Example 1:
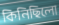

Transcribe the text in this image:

কিনিছিলো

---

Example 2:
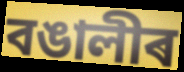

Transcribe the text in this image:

বঙালীৰ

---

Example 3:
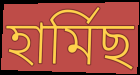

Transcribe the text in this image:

হাৰ্মিছ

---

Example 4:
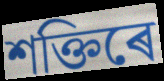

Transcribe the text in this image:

শক্তিৰে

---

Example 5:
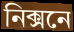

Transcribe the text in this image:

নিক্সনে